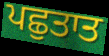
ਪਛੁਤਾਤ